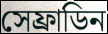
সেফ্রাডিন